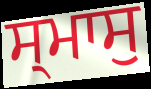
ਸ੍ਮਾਸੁ